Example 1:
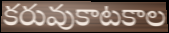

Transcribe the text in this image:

కరువుకాటకాల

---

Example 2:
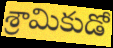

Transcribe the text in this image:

శ్రామికుడో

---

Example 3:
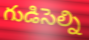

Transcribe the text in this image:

గుడిసెల్ని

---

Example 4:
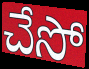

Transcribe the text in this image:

చేసో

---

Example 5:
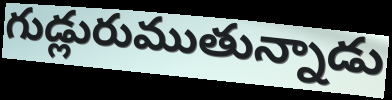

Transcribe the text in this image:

గుడ్లురుముతున్నాడు